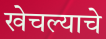
खेचल्याचे